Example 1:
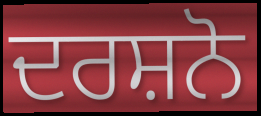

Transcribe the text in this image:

ਦਰਸ਼ਨੋ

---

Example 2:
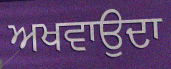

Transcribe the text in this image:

ਅਖਵਾਉਦਾ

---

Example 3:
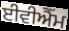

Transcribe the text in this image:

ਈਵੀਐੱਮ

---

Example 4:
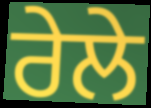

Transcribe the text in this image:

ਰੇਲੇ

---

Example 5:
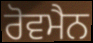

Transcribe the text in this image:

ਰੋਵਮੈਨ